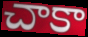
చాకా